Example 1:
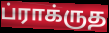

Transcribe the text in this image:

ப்ராக்ருத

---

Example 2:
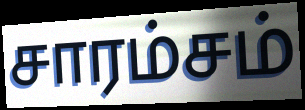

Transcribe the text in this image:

சாரம்சம்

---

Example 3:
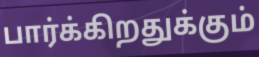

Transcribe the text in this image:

பார்க்கிறதுக்கும்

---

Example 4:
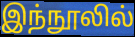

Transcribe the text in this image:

இந்நூலில்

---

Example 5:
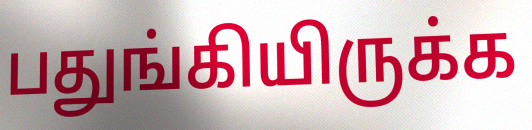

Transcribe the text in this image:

பதுங்கியிருக்க